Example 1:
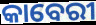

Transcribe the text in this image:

କାବେରୀ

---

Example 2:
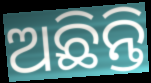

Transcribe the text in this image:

ଅଛିନ୍ତି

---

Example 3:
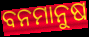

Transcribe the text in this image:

ବନମାନୁଷ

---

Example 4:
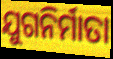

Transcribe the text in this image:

ଯୁଗନିର୍ମାତା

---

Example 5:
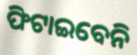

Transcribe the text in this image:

ଫିଟାଇବେନି